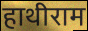
हाथीराम